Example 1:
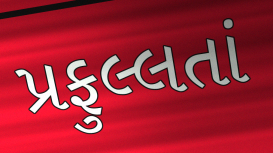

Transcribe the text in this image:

પ્રફુલ્લતાં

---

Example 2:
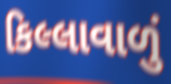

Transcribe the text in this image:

કિલ્લાવાળું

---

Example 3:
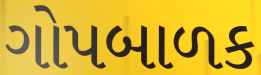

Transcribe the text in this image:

ગોપબાળક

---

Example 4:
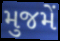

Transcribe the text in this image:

મુજમેં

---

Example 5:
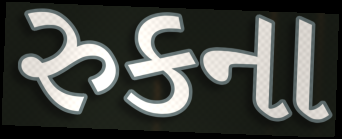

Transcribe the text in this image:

રુકના